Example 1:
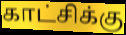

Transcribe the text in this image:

காட்சிக்கு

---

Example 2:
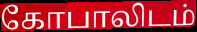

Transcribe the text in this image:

கோபாலிடம்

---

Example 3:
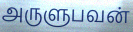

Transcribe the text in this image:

அருளுபவன்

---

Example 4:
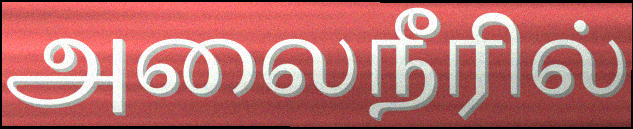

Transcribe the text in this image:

அலைநீரில்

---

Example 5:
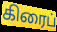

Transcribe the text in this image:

கிரைப்